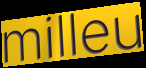
milleu